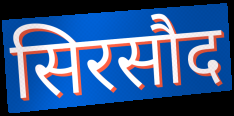
सिरसौद